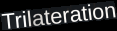
Trilateration